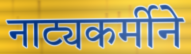
नाट्यकर्मीने